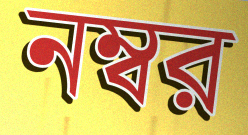
নম্বর